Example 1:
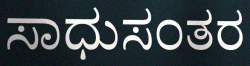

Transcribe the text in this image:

ಸಾಧುಸಂತರ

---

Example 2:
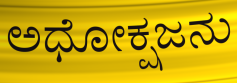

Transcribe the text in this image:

ಅಧೋಕ್ಷಜನು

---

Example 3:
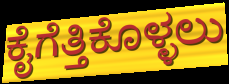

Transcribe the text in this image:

ಕೈಗೆತ್ತಿಕೊಳ್ಳಲು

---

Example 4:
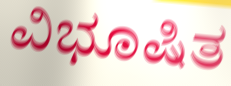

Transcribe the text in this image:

ವಿಭೂಷಿತ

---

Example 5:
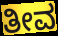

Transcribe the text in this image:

ತೀವ